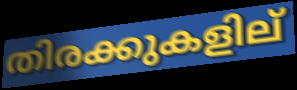
തിരക്കുകളില്